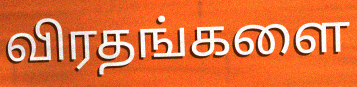
விரதங்களை